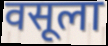
वसूला